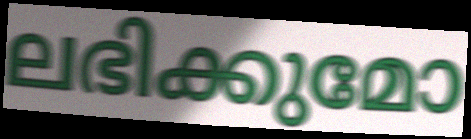
ലഭിക്കുമോ